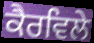
ਕੈਰਵਿਲੇ